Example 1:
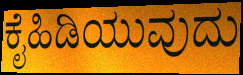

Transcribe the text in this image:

ಕೈಹಿಡಿಯುವುದು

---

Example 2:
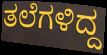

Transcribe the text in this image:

ತಲೆಗಳಿದ್ದ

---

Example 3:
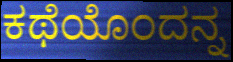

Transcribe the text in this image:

ಕಥೆಯೊಂದನ್ನ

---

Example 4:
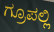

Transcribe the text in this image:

ಗ್ರೂಪಲ್ಲಿ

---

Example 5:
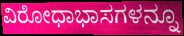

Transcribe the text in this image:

ವಿರೋಧಾಭಾಸಗಳನ್ನೂ